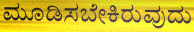
ಮೂಡಿಸಬೇಕಿರುವುದು